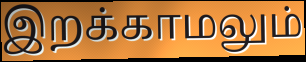
இறக்காமலும்